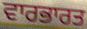
ਵਾਰਭਾਰਤ